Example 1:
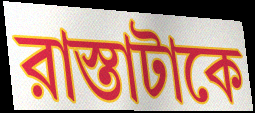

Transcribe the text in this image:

রাস্তাটাকে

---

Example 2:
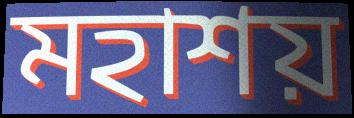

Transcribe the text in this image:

মহাশয়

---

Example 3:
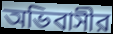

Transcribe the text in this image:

অভিবাসীর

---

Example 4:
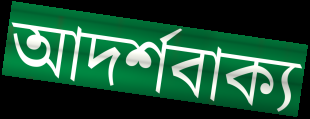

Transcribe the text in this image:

আদর্শবাক্য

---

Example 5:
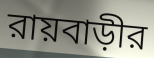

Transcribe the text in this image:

রায়বাড়ীর